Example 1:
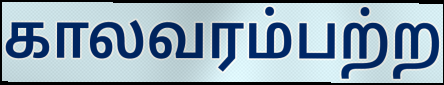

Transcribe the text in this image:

காலவரம்பற்ற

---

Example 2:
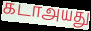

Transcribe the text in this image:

கடாஅயது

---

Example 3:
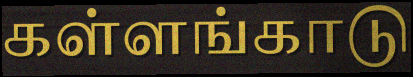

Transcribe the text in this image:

கள்ளங்காடு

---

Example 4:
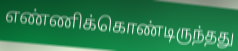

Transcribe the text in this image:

எண்ணிக்கொண்டிருந்தது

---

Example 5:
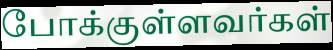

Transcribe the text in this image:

போக்குள்ளவர்கள்